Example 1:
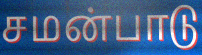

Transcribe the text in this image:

சமன்பாடு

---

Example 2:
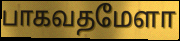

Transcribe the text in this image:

பாகவதமேளா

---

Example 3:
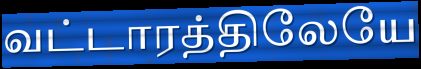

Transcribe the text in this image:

வட்டாரத்திலேயே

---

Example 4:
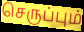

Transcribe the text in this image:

செருப்பும்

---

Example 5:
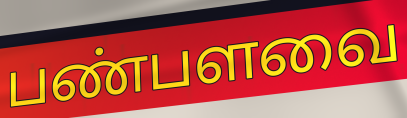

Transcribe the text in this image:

பண்பளவை